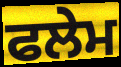
ਫਲੇਮ